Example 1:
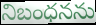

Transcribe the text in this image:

నిబంధనను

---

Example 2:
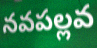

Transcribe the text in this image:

నవపల్లవ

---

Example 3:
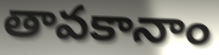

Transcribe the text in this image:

తావకానాం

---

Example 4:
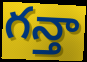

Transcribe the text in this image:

గన్తా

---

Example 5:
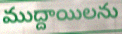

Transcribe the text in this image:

ముద్దాయిలను